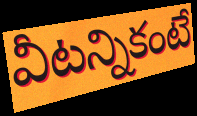
వీటన్నికంటే